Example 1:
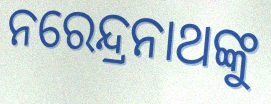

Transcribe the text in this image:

ନରେନ୍ଦ୍ରନାଥଙ୍କୁ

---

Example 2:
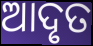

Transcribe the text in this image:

ଆଦୃତ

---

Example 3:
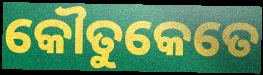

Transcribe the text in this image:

କୌତୁକେତେ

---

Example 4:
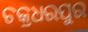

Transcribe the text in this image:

ଚକ୍ରଧରପୁର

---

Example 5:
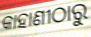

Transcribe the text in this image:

କାହାଣୀଠାରୁ